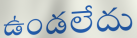
ఉండలేదు